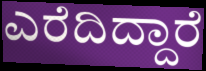
ಎರೆದಿದ್ದಾರೆ